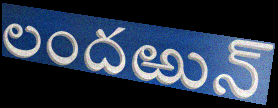
లందఱున్